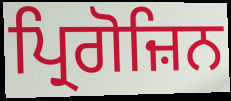
ਪ੍ਰਿਗੋਜ਼ਿਨ